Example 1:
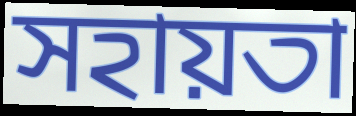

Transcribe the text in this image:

সহায়তা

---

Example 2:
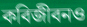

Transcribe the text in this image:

কবিজীবনও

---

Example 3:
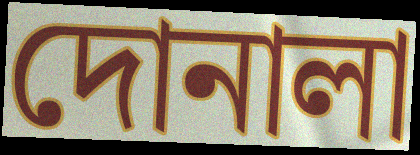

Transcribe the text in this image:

দোনালা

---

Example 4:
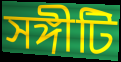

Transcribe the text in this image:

সঙ্গীটি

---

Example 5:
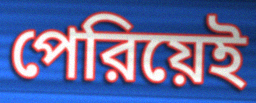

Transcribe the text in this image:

পেরিয়েই